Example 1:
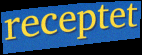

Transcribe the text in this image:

receptet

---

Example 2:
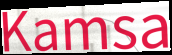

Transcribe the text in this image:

Kamsa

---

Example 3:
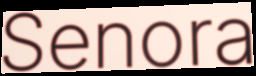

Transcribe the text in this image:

Senora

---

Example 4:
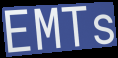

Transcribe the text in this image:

EMTs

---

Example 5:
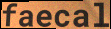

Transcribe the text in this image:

faecal